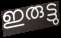
ഇരുട്ടു